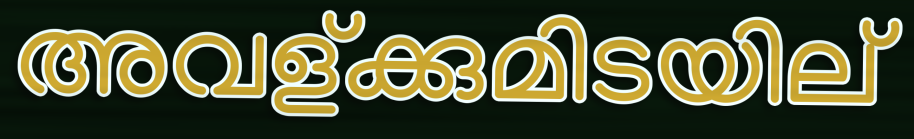
അവള്ക്കുമിടയില്